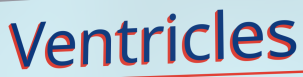
Ventricles